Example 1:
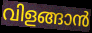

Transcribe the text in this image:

വിളങ്ങാൻ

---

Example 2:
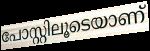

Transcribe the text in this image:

പോസ്റ്റിലൂടെയാണ്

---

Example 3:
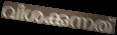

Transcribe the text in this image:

വിശക്കുന്നത്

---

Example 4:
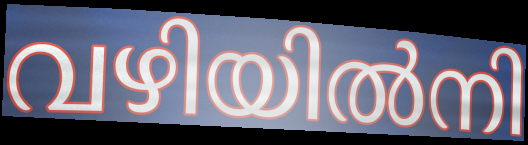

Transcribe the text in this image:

വഴിയിൽനി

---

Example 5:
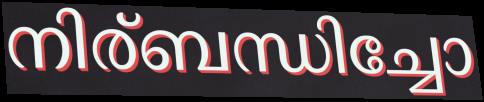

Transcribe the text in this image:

നിര്ബന്ധിച്ചോ